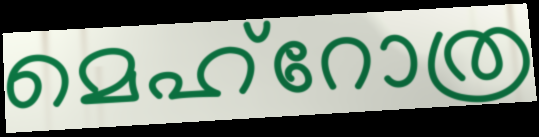
മെഹ്റോത്ര